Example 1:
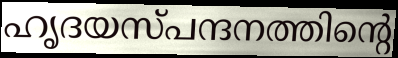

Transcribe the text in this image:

ഹൃദയസ്പന്ദനത്തിന്റെ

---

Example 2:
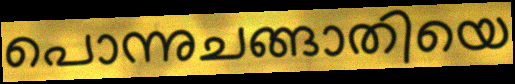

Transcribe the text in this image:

പൊന്നുചങ്ങാതിയെ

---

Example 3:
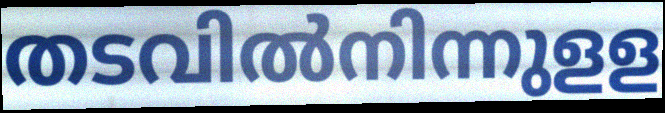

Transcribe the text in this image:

തടവിൽനിന്നുളള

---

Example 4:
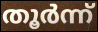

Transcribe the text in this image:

തൂർന്ന്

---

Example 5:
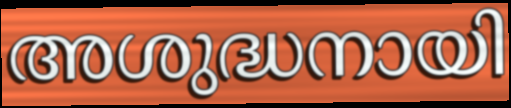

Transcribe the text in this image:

അശുദ്ധനായി